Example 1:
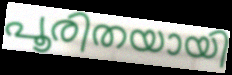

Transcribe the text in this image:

പൂരിതയായി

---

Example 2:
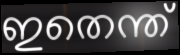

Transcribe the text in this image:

ഇതെന്ത്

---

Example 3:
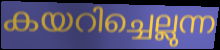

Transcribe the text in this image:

കയറിച്ചെല്ലുന്ന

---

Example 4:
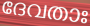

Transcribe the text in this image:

ദേവതാഃ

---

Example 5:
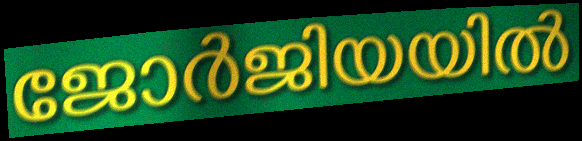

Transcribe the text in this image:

ജോർജിയയിൽ